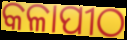
କଳାପୀଠ